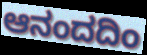
ಆನಂದದಿಂ